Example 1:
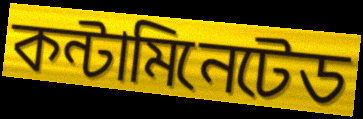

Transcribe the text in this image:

কন্টামিনেটেড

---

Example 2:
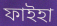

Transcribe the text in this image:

ফাইহা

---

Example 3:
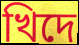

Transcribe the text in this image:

খিদে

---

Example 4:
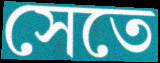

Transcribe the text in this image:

সেতে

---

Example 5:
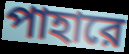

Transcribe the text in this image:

পাহারে